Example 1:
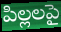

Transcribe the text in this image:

పిల్లలపై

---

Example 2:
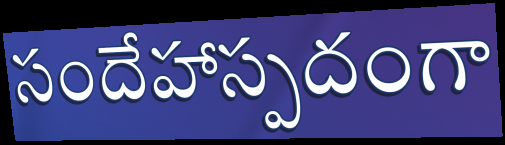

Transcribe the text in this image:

సందేహాస్పదంగా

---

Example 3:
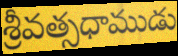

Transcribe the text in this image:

శ్రీవత్సధాముడు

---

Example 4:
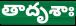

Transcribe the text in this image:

తాదృశాః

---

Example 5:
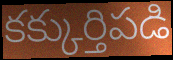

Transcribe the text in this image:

కక్కుర్తిపడి